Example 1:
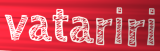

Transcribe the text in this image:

vatariri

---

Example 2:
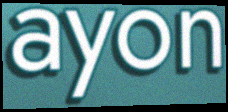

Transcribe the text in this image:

ayon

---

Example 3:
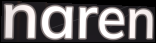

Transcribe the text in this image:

naren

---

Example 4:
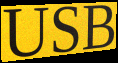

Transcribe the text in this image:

USB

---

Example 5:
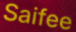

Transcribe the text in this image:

Saifee